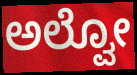
ಅಲ್ವೋ